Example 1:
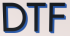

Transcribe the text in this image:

DTF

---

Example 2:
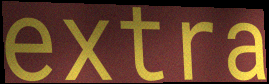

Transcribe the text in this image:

extra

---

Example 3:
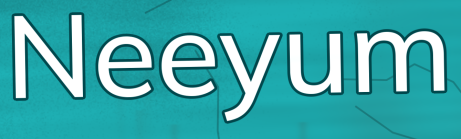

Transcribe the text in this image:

Neeyum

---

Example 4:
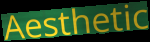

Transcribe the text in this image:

Aesthetic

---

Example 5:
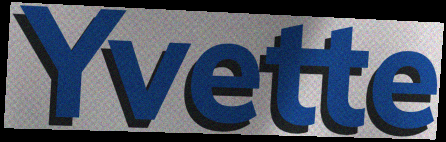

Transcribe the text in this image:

Yvette